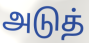
அடுத்